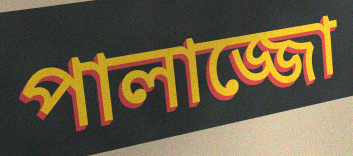
পালাজ্জো